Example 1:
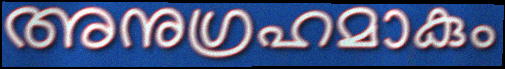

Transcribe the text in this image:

അനുഗ്രഹമാകും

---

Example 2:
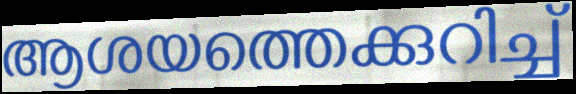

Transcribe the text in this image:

ആശയത്തെക്കുറിച്ച്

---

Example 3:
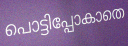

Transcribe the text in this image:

പൊട്ടിപ്പോകാതെ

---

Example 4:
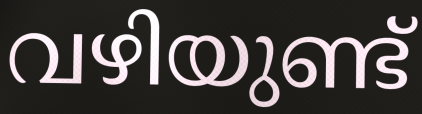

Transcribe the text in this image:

വഴിയുണ്ട്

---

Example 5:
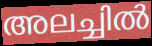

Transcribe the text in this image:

അലച്ചിൽ